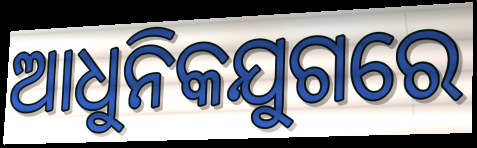
ଆଧୁନିକଯୁଗରେ